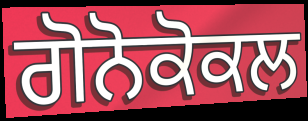
ਗੋਨੋਕੋਕਲ